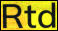
Rtd